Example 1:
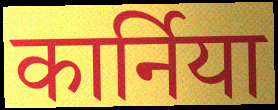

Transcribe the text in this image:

कार्निया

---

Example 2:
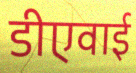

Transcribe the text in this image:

डीएवाई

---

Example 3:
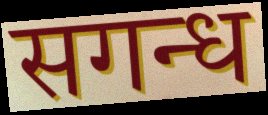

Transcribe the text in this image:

सगन्ध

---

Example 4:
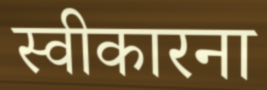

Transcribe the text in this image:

स्वीकारना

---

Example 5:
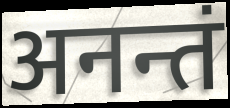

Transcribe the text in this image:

अनन्तं